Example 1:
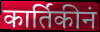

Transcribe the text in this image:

कार्तिकीनं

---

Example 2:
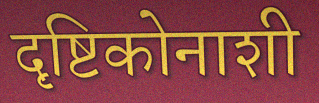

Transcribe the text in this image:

दृष्टिकोनाशी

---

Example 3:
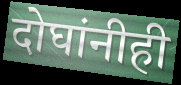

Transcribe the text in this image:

दोघांनीही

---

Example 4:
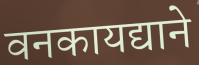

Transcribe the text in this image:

वनकायद्याने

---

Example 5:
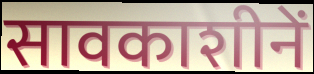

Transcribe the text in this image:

सावकाशीनें